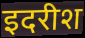
इदरीश